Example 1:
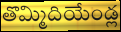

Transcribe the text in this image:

తొమ్మిదియేండ్ల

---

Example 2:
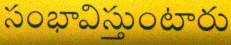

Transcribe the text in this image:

సంభావిస్తుంటారు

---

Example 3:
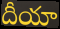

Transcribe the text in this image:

దీయా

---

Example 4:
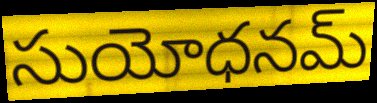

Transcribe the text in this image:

సుయోధనమ్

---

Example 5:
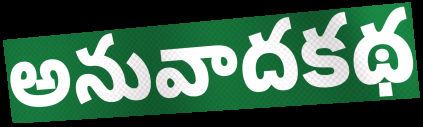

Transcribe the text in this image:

అనువాదకథ